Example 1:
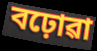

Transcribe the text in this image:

বঢ়োৱা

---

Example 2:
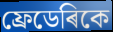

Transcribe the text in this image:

ফ্ৰেডেৰিকে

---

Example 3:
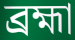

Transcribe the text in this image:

ব্ৰহ্মা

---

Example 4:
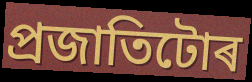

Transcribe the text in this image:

প্ৰজাতিটোৰ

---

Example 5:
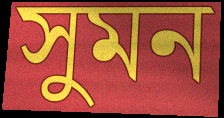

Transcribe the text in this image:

সুমন